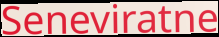
Seneviratne